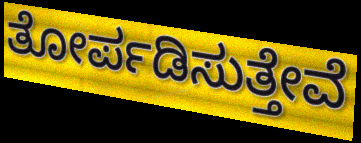
ತೋರ್ಪಡಿಸುತ್ತೇವೆ